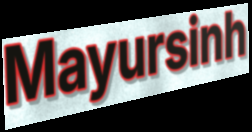
Mayursinh